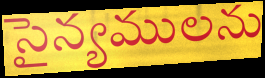
సైన్యములను